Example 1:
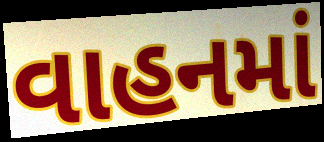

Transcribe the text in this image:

વાહનમાં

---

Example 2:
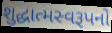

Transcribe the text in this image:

શુદ્ધાત્મસ્વરૂપનો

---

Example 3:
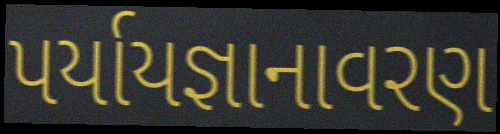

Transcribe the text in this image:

પર્યાયજ્ઞાનાવરણ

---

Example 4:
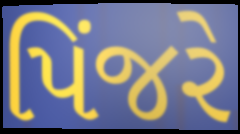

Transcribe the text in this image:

પિંજરે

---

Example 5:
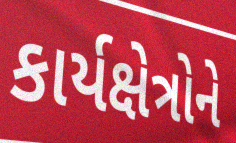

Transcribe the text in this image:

કાર્યક્ષેત્રોને